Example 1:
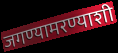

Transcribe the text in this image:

जगण्यामरण्याशी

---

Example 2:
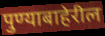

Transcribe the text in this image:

पुण्याबाहेरील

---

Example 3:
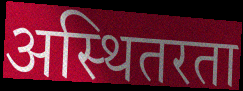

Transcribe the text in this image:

अस्थितरता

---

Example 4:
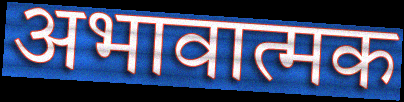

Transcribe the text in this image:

अभावात्मक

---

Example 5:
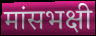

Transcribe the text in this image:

मांसभक्षी